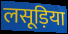
लसूड़िया